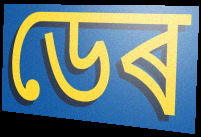
ডেৰ